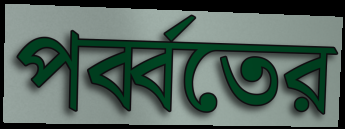
পর্ব্বতের